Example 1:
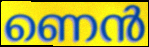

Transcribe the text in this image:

ണെൻ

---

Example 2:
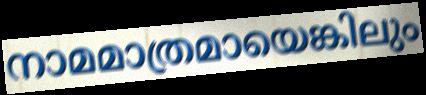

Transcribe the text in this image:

നാമമാത്രമായെങ്കിലും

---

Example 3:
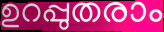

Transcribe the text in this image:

ഉറപ്പുതരാം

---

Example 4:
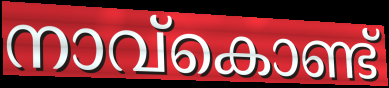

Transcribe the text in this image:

നാവ്കൊണ്ട്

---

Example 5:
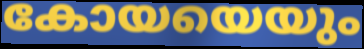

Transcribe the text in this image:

കോയയെയും